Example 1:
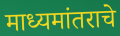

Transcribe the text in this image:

माध्यमांतराचे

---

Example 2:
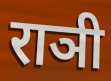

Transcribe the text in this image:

राञी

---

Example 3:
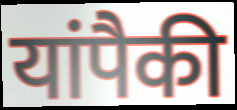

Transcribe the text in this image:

यांपैकी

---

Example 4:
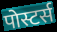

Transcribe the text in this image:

पोस्टर्स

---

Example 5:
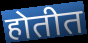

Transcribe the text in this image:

होतीत